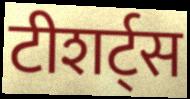
टीशर्ट्स